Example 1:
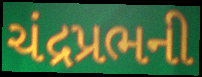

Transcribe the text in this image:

ચંદ્રપ્રભની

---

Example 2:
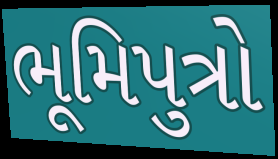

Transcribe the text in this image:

ભૂમિપુત્રો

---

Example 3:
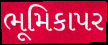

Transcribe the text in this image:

ભૂમિકાપર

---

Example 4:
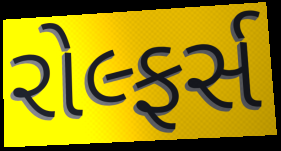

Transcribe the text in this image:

રોલ્ફર્સ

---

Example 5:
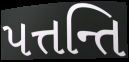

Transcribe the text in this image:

પત્તન્તિ